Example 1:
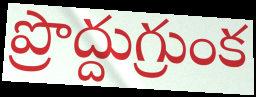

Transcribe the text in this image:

ప్రొద్దుగ్రుంక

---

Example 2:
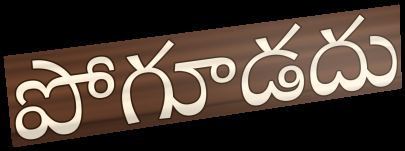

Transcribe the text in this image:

పోగూడదు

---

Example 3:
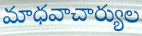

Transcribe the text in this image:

మాధవాచార్యుల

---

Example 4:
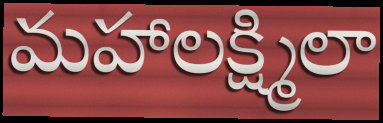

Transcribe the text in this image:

మహాలక్ష్మిలా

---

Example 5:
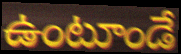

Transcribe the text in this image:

ఉంటూండే